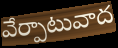
వేర్పాటువాద